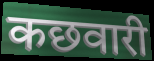
कछवारी